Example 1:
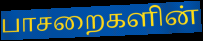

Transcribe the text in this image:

பாசறைகளின்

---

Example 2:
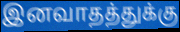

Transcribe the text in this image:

இனவாதத்துக்கு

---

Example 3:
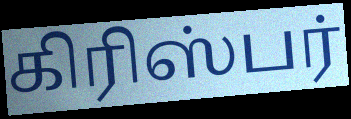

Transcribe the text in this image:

கிரிஸ்பர்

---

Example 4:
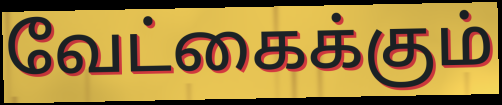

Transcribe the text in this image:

வேட்கைக்கும்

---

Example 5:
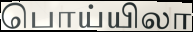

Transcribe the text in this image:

பொய்யிலா